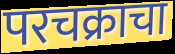
परचक्राचा